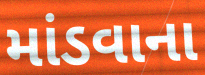
માંડવાના